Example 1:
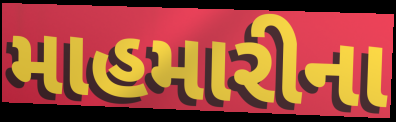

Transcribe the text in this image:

માહમારીના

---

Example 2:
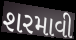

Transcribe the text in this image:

શરમાવી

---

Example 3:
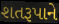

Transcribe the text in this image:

શતરૂપાને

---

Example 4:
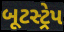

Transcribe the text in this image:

બૂટસ્ટ્રેપ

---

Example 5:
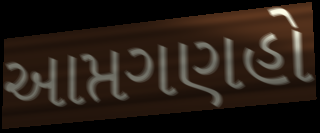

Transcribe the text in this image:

આપ્તગણહો